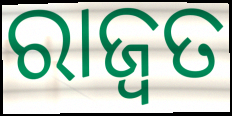
ରାଜ୍ୱତ